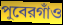
পুবেরগাঁও